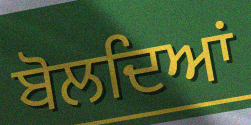
ਬੋਲਦਿਆਂ